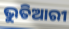
ଭୁତିଆରୀ